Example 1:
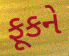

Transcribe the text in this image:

ફૂકને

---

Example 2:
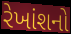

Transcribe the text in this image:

રેખાંશનો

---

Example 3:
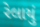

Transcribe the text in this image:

રેલાયું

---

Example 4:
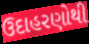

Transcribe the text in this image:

ઉદાહરણોથી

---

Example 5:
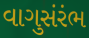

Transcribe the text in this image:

વાગુસંરંભ